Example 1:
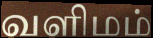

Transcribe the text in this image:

வளிமம்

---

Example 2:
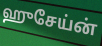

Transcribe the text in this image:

ஹுசேய்ன்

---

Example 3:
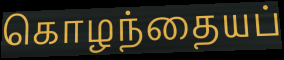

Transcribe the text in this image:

கொழந்தையப்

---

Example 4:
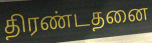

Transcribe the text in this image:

திரண்டதனை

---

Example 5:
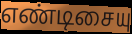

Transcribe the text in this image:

எண்டிசையு